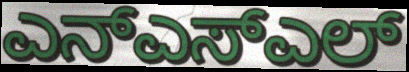
ಎನ್ಎಸ್ಎಲ್